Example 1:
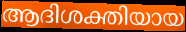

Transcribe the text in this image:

ആദിശക്തിയായ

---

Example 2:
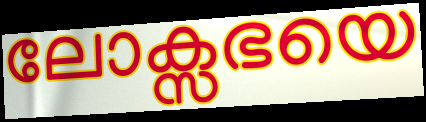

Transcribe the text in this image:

ലോക്സഭയെ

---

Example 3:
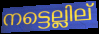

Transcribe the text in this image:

നട്ടെല്ലില്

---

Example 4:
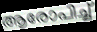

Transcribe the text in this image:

ആരോപിച്ച്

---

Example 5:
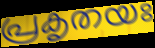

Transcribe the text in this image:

പ്രകൃതയഃ